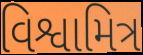
વિશ્વામિત્ર